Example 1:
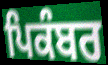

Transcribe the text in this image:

ਪਿਕੰਬਰ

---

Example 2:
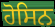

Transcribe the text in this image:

ਹੋਸਿਨ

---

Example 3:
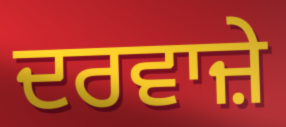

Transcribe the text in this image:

ਦਰਵਾਜ਼ੇ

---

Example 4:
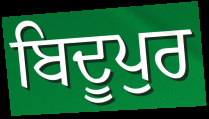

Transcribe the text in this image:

ਬਿਦੂਪੁਰ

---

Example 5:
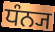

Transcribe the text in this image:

ਧੰਨ੍ਯ